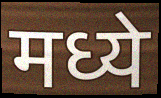
मध्ये